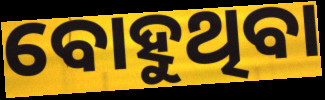
ବୋହୁଥିବା